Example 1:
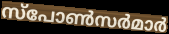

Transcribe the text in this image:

സ്പോൺസർമാർ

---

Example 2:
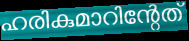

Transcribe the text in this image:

ഹരികുമാറിന്റേത്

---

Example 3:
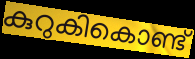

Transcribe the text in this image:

കുറുകികൊണ്ട്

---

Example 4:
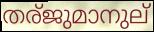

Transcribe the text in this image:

തര്ജുമാനുല്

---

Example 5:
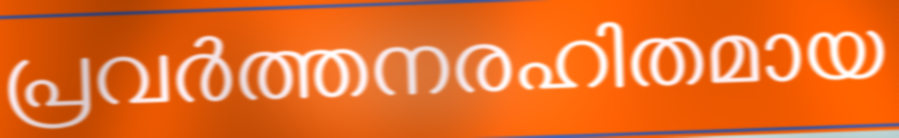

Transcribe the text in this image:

പ്രവർത്തനരഹിതമായ